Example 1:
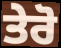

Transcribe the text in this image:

ਤੇਰੋ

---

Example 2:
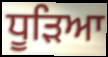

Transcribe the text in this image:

ਧੂੜਿਆ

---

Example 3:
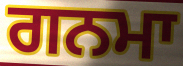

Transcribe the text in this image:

ਗਨਮਾ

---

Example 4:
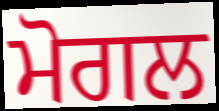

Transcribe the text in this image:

ਮੋਗਲ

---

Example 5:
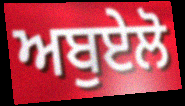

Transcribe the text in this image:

ਅਬੁਏਲੋ